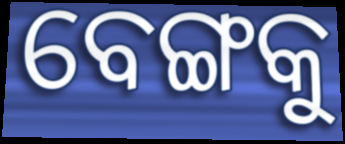
ବେଙ୍ଗକୁ